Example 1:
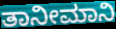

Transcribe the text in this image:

ತಾನೀಮಾನಿ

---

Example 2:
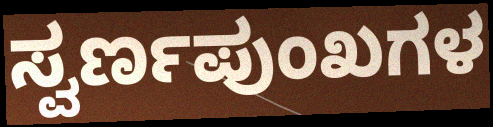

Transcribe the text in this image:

ಸ್ವರ್ಣಪುಂಖಗಳ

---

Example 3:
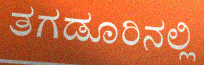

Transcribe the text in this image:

ತಗಡೂರಿನಲ್ಲಿ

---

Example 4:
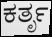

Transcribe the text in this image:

ಕರ್ತೃ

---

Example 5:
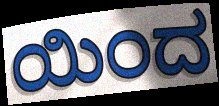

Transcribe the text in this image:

ಯಿಂದ